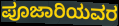
ಪೂಜಾರಿಯವರ